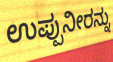
ಉಪ್ಪುನೀರನ್ನು